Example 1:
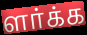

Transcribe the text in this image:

ளர்க்க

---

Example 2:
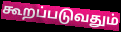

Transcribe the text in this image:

கூறப்படுவதும்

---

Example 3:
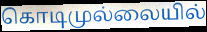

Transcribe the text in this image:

கொடிமுல்லையில்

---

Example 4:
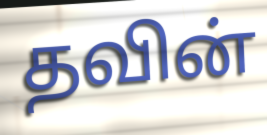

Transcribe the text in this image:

தவின்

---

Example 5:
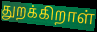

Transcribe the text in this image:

துறக்கிறாள்